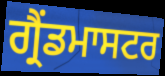
ਗ੍ਰੈਂਡਮਾਸਟਰ